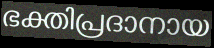
ഭക്തിപ്രദാനായ